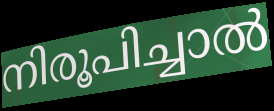
നിരൂപിച്ചാൽ